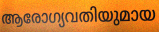
ആരോഗ്യവതിയുമായ